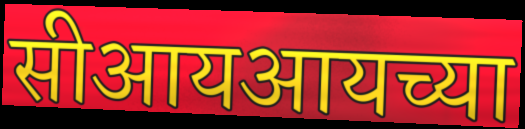
सीआयआयच्या